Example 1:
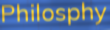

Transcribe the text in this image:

Philosphy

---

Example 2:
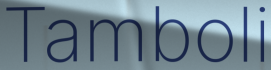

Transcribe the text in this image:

Tamboli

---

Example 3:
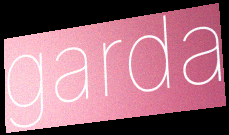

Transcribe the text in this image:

garda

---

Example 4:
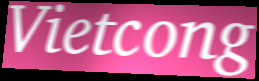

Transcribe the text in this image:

Vietcong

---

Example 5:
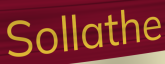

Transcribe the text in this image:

Sollathe